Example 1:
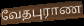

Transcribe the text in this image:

வேதபுராண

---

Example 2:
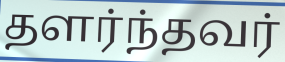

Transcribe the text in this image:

தளர்ந்தவர்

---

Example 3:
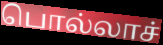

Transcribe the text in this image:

பொல்லாச்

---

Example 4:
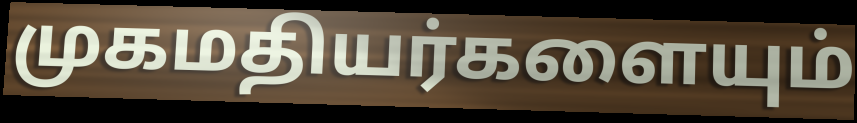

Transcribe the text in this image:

முகமதியர்களையும்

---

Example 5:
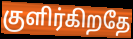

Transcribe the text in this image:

குளிர்கிறதே